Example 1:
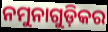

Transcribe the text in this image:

ନମୁନାଗୁଡ଼ିକର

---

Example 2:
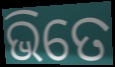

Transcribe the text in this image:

ଭିତେ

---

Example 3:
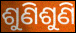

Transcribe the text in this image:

ଶୁଣିଶୁଣି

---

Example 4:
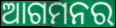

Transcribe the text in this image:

ଆଗମନର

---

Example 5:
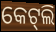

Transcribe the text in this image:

କେଟ୍‍ଲି